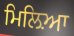
ਮਿਲ਼ਿਆ